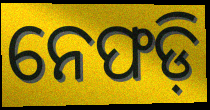
ନେଫଡ଼ି